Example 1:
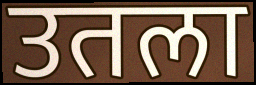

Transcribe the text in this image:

उतला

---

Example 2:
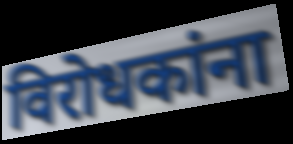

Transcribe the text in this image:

विरोधकांना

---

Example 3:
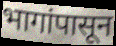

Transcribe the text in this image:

भागांपासून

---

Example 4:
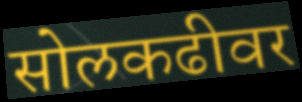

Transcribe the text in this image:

सोलकढीवर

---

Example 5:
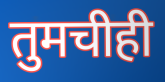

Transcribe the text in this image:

तुमचीही